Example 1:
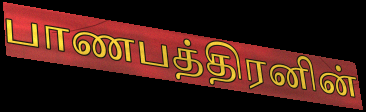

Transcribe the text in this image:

பாணபத்திரனின்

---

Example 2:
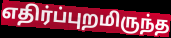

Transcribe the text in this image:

எதிர்ப்புறமிருந்த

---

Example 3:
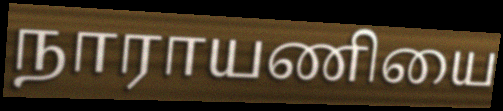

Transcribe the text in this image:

நாராயணியை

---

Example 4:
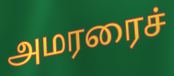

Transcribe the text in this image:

அமரரைச்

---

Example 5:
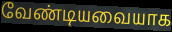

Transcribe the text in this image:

வேண்டியவையாக